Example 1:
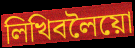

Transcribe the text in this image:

লিখিবলৈয়ো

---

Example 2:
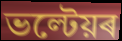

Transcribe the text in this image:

ভল্টেয়ৰ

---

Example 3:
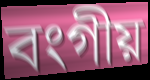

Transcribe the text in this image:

বংগীয়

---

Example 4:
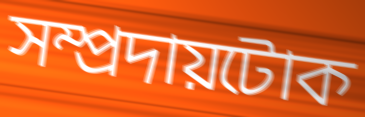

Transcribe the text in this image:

সম্প্ৰদায়টোক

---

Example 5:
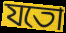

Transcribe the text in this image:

যতো